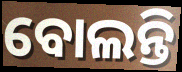
ବୋଲନ୍ତି